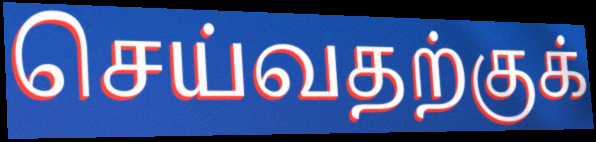
செய்வதற்குக்